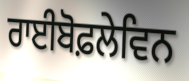
ਰਾਈਬੋਫ਼ਲੇਵਿਨ